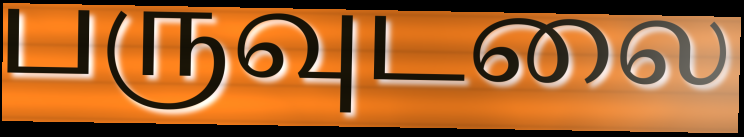
பருவுடலை